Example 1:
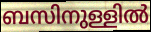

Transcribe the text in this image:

ബസിനുള്ളിൽ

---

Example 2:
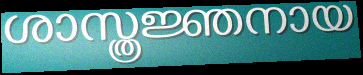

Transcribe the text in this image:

ശാസ്ത്രജ്ഞനായ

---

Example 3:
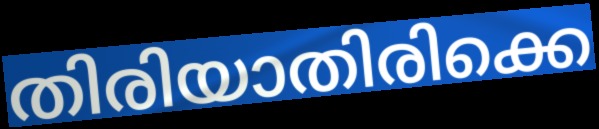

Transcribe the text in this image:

തിരിയാതിരിക്കെ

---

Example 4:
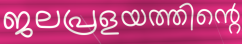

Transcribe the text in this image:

ജലപ്രളയത്തിന്റെ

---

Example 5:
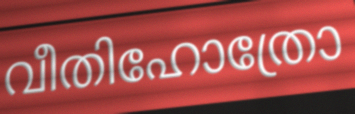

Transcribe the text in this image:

വീതിഹോത്രോ